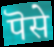
पॆसे